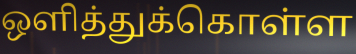
ஒளித்துக்கொள்ள